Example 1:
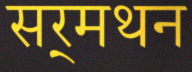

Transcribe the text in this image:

सर्मथन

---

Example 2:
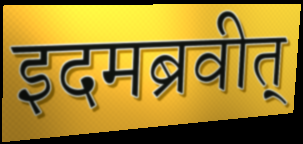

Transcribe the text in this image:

इदमब्रवीत्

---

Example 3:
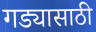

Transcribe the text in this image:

गड्यासाठी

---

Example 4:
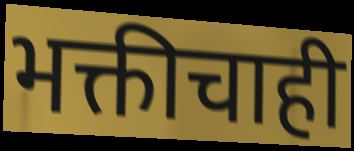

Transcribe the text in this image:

भक्तीचाही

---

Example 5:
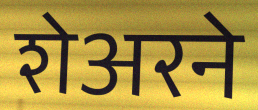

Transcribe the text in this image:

शेअरने